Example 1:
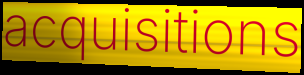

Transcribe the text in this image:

acquisitions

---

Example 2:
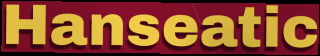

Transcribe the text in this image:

Hanseatic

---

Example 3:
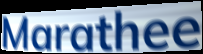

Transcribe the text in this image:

Marathee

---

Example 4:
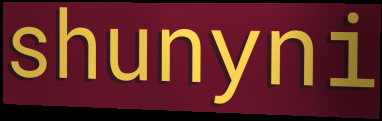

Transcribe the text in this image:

shunyni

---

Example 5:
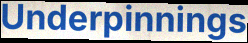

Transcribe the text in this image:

Underpinnings